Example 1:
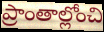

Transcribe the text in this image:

ప్రాంతాల్లోంచి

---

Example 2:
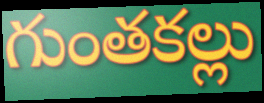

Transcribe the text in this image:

గుంతకల్లు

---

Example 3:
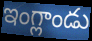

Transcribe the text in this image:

ఇంగ్లాండు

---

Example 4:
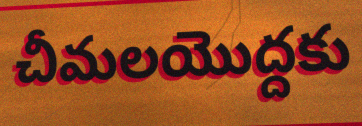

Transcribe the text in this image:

చీమలయొద్దకు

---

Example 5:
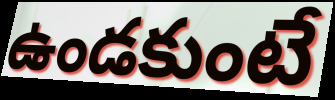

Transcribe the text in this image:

ఉండకుంటే